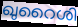
ഖുറൈശി